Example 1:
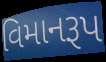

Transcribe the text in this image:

વિમાનરૂપ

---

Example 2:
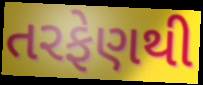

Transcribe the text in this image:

તરફેણથી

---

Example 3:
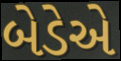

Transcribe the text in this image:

બેડેએ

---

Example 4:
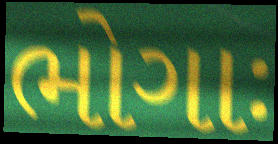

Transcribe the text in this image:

ભોગાઃ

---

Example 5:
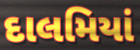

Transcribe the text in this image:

દાલમિયાં